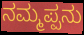
ನಮ್ಮಪ್ಪನು